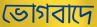
ভোগবাদে